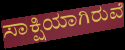
ಸಾಕ್ಷಿಯಾಗಿರುವೆ